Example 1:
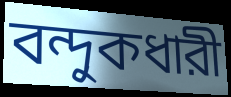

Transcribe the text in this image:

বন্দুকধারী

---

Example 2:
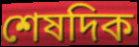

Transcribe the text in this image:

শেষদিক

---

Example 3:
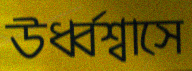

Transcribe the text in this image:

উর্ধ্বশ্বাসে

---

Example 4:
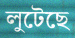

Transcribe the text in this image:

লুটেছে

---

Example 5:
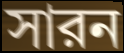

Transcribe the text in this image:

সারন